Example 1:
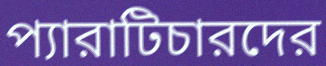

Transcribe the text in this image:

প্যারাটিচারদের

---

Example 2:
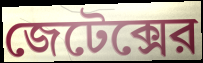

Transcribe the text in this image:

জেটেক্সের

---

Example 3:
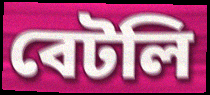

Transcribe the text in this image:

বেটলি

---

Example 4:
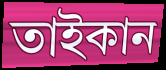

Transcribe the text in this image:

তাইকান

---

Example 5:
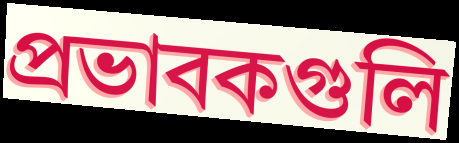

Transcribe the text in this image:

প্রভাবকগুলি